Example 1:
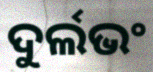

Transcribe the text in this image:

ଦୁର୍ଲଭଂ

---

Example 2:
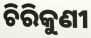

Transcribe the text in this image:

ଚିରିକୁଣୀ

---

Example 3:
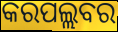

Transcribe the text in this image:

କରପଲ୍ଲବର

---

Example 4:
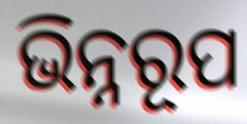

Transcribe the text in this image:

ଭିନ୍ନରୂପ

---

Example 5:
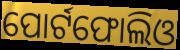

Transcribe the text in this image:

ପୋର୍ଟଫୋଲିଓ